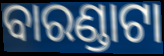
ବାରଣ୍ଡାଟା